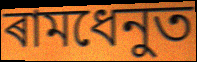
ৰামধেনুত